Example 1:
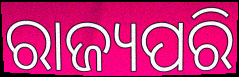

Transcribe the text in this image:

ରାଜ୍ୟପରି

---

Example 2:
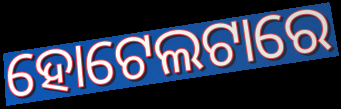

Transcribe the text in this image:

ହୋଟେଲଟାରେ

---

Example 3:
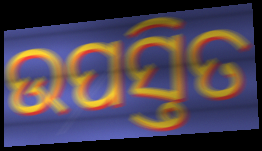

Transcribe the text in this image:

ଉପସ୍ତିତ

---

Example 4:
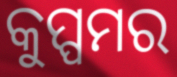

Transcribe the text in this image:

କୁପ୍ପମର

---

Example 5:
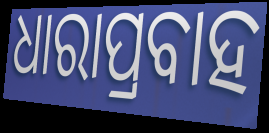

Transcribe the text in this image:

ଧାରାପ୍ରବାହ